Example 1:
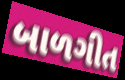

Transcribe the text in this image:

બાળગીત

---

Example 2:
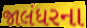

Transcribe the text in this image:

જાલંધરના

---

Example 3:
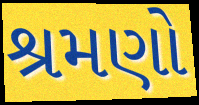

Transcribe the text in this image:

શ્રમણો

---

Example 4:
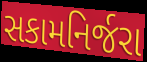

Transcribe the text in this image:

સકામનિર્જરા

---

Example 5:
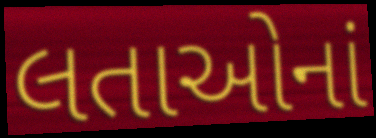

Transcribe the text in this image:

લતાઓનાં